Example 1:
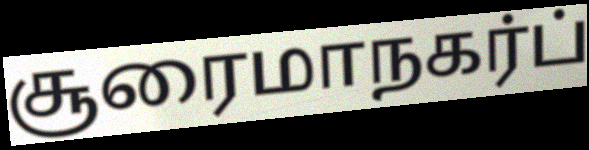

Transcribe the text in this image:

சூரைமாநகர்ப்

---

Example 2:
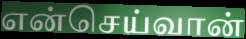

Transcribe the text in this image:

என்செய்வான்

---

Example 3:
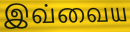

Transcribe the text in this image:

இவ்வைய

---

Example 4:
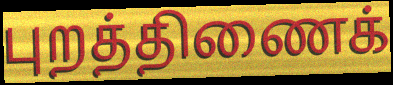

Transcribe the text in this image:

புறத்திணைக்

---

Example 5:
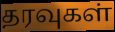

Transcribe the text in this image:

தரவுகள்